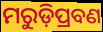
ମରୁଡ଼ିପ୍ରବଣ